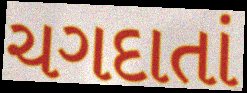
ચગદાતાં